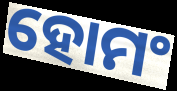
ହୋମଂ